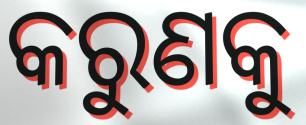
କରୁଣକୁ